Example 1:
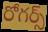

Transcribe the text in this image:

రోగర్స్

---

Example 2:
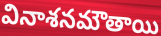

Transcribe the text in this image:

వినాశనమౌతాయి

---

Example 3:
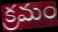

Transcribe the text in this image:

క్రమం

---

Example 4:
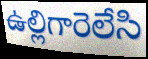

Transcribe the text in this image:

ఉల్లిగారెలేసి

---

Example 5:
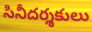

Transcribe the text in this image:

సినీదర్శకులు